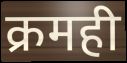
क्रमही